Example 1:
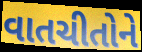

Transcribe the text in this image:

વાતચીતોને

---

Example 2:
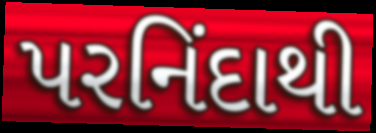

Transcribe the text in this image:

પરનિંદાથી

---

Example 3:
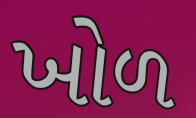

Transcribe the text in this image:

ખોળ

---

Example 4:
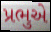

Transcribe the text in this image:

પ્રભુએ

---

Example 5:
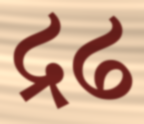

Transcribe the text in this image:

દ્રઢ